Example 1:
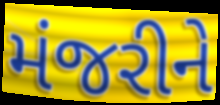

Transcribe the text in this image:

મંજરીને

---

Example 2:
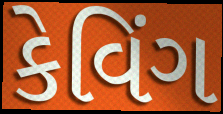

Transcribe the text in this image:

કેવિંગ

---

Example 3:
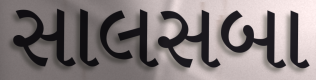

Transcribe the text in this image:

સાલસબા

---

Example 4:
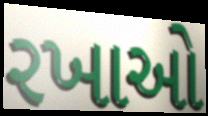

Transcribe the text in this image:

રખાઓ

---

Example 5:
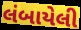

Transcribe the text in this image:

લંબાયેલી